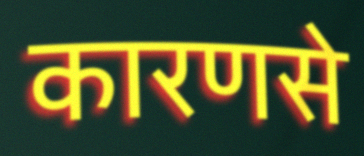
कारणसे